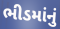
ભીડમાંનું